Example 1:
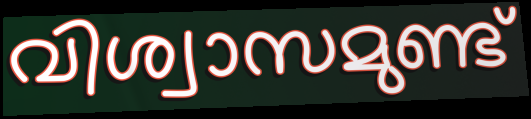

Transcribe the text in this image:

വിശ്വാസമുണ്ട്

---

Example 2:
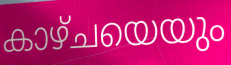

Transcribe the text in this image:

കാഴ്ചയെയും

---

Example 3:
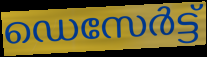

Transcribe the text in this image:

ഡെസേർട്ട്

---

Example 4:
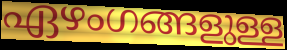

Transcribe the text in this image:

ഏഴംഗങ്ങളുള്ള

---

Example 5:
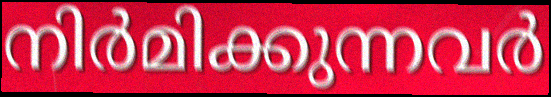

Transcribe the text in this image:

നിർമിക്കുന്നവർ